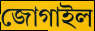
জোগাইল